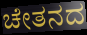
ಚೇತನದ